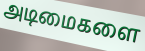
அடிமைகளை